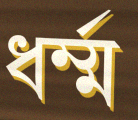
ধর্ম্ম